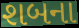
શબના